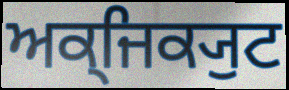
ਅਕ੍ਜਿਕ੍ਯੁਟ